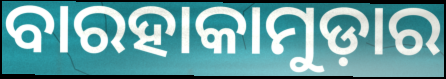
ବାରହାକାମୁଡ଼ାର